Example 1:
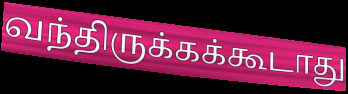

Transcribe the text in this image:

வந்திருக்கக்கூடாது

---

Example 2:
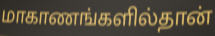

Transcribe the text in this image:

மாகாணங்களில்தான்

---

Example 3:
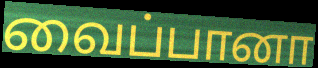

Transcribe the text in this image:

வைப்பானா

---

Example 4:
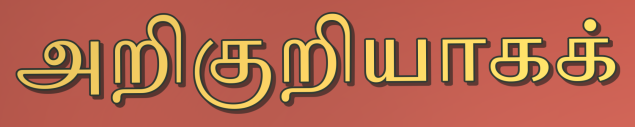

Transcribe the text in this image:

அறிகுறியாகக்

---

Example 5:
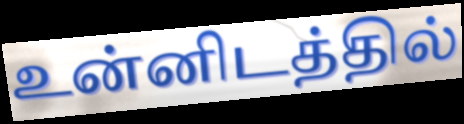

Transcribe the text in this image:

உன்னிடத்தில்